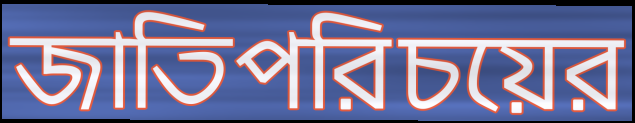
জাতিপরিচয়ের